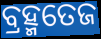
ବ୍ରହ୍ମତେଜ